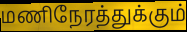
மணிநேரத்துக்கும்